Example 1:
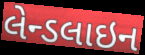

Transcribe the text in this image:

લેન્ડલાઇન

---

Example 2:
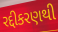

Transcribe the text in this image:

રદ્દીકરણથી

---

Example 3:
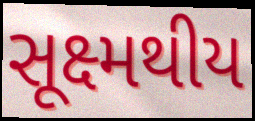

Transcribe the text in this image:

સૂક્ષ્મથીય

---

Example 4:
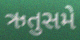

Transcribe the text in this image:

ઋતુસમે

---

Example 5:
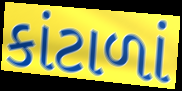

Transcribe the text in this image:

કાંટાળાં